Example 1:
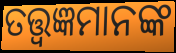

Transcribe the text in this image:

ତତ୍ତ୍ୱଜ୍ଞମାନଙ୍କ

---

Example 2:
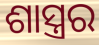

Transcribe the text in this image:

ଶାସ୍ତ୍ରର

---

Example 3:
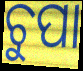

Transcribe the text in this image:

ଚୁପା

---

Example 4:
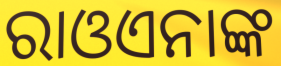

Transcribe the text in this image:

ରାଓଏନାଙ୍କ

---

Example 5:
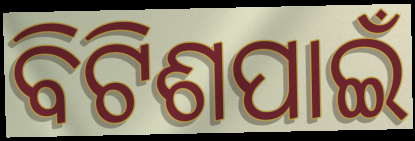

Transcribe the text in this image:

ବିଟିଶପାଇଁ